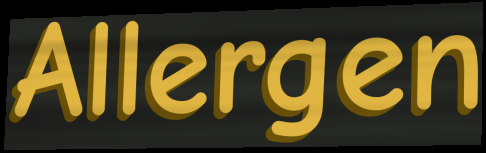
Allergen